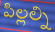
పిల్లల్ని